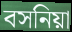
বসনিয়া